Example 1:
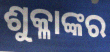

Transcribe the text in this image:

ଶୁକ୍ଳାଙ୍କର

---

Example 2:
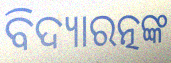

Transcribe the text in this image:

ବିଦ୍ୟାରତ୍ନଙ୍କ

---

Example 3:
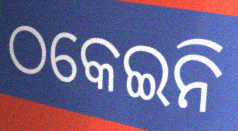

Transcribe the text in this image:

ଠକେଇନି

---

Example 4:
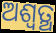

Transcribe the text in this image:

ଅଶ୍ଵତ୍ଥ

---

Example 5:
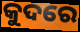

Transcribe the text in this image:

କୁଦରେ